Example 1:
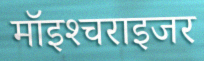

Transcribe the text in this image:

मॉइश्‍चराइजर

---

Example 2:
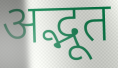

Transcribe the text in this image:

अद्भूत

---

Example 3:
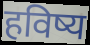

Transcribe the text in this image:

हविष्‍य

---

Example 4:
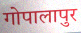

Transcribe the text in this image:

गोपालापुर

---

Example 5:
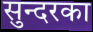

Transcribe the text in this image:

सुन्दरका